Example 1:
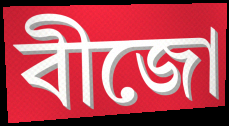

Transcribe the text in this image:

বীজো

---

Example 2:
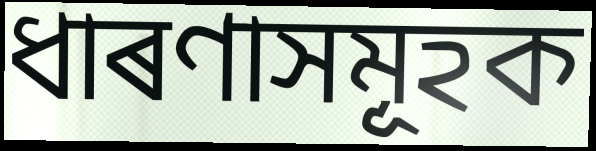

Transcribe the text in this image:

ধাৰণাসমূহক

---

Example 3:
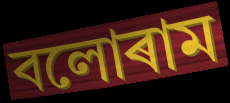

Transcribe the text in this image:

বলোৰাম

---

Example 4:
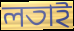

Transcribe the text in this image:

লতাই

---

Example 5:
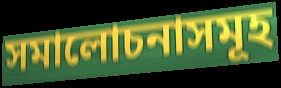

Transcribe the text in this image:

সমালোচনাসমূহ